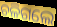
ଚଳିଗଲେ